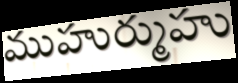
ముహుర్ముహు